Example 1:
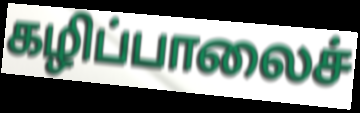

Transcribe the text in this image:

கழிப்பாலைச்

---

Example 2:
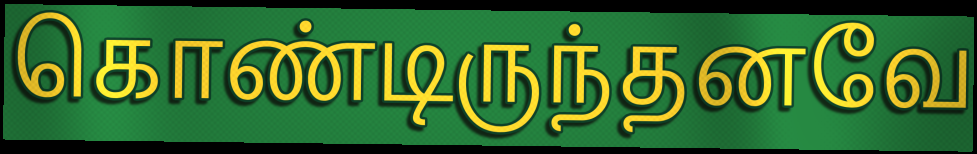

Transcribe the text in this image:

கொண்டிருந்தனவே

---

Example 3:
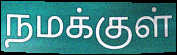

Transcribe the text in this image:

நமக்குள்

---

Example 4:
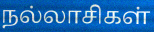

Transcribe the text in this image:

நல்லாசிகள்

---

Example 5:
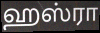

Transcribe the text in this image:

ஹஸ்ரா